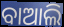
ବାଆଲି